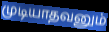
முடியாதவனும்